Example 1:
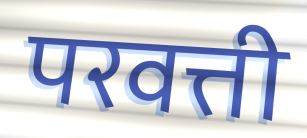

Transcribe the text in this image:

परवत्ती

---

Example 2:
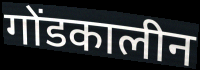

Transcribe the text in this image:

गोंडकालीन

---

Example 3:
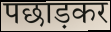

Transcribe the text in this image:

पछाड़कर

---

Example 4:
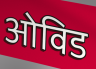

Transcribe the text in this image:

ओविड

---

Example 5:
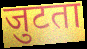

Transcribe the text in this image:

जुटता